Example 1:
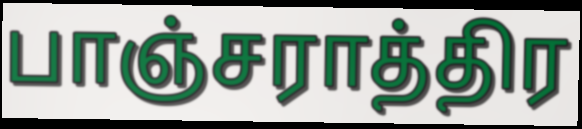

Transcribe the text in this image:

பாஞ்சராத்திர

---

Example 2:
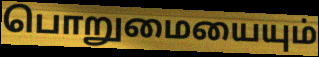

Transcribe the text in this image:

பொறுமையையும்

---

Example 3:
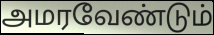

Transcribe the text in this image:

அமரவேண்டும்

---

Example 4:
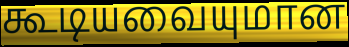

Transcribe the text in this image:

கூடியவையுமான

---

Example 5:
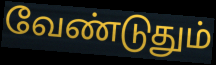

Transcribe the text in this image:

வேண்டுதும்